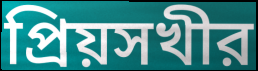
প্রিয়সখীর